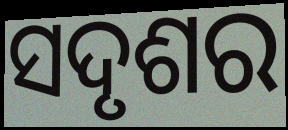
ସଦୃଶର